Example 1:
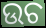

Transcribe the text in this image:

ଉଚ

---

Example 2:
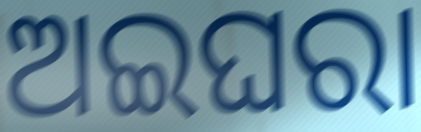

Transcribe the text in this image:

ଅଇଘରା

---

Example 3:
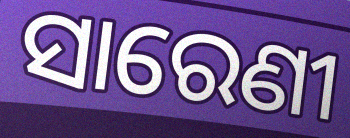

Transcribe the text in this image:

ସାରେଣୀ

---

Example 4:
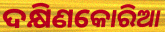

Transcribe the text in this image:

ଦକ୍ଷିଣକୋରିଆ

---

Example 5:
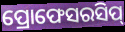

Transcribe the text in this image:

ପ୍ରୋଫେସରସିପ୍